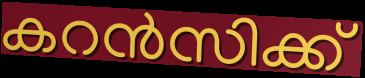
കറൻസിക്ക്